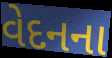
વેદનના